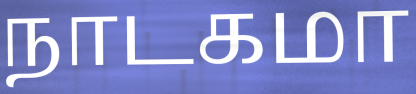
நாடகமா